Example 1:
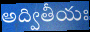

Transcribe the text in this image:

అద్వితీయః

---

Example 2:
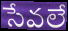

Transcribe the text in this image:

సేవలే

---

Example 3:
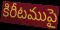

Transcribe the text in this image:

కిరీటముపై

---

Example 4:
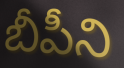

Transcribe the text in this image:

బీపీని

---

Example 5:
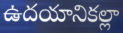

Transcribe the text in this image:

ఉదయానికల్లా